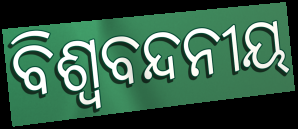
ବିଶ୍ୱବନ୍ଦନୀୟ